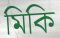
মিকি